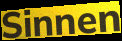
Sinnen